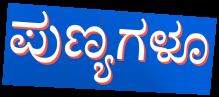
ಪುಣ್ಯಗಳೂ